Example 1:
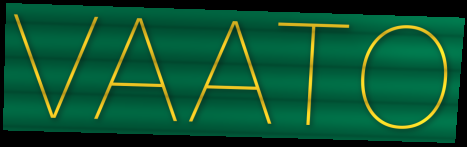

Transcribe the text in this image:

VAATO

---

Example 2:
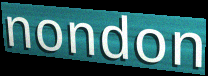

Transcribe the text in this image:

nondon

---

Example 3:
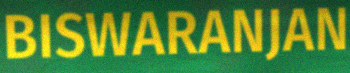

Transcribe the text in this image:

BISWARANJAN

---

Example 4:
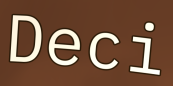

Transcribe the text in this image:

Deci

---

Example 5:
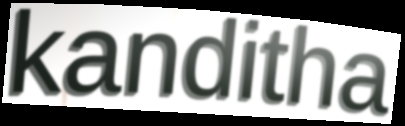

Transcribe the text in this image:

kanditha